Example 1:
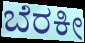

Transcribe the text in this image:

ಬೆರಕೀ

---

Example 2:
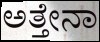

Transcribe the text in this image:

ಅತ್ತೇನಾ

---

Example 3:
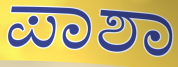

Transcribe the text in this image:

ಪಾಶಾ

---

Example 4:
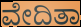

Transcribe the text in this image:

ವೇದಿತಾ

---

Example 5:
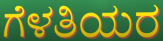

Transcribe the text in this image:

ಗೆಳತಿಯರ